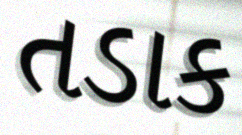
તડાક